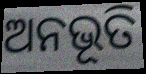
ଅନଭୂତି